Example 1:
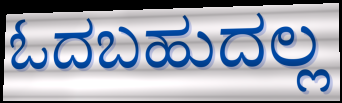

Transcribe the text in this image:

ಓದಬಹುದಲ್ಲ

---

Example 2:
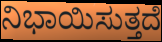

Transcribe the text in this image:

ನಿಭಾಯಿಸುತ್ತದೆ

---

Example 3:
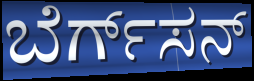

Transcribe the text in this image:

ಬೆರ್ಗ್‌ಸನ್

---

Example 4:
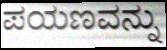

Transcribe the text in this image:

ಪಯಣವನ್ನು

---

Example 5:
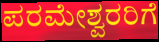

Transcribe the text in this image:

ಪರಮೇಶ್ವರರಿಗೆ